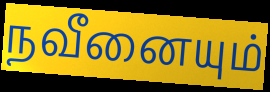
நவீனையும்